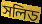
সলিড